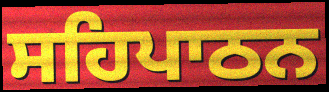
ਸਹਿਪਾਠਨ